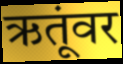
ऋतूंवर